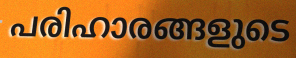
പരിഹാരങ്ങളുടെ